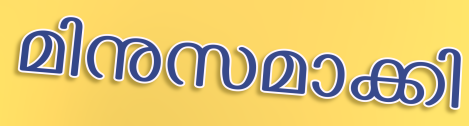
മിനുസമാക്കി